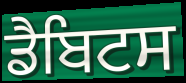
ਡੈਬਿਟਸ